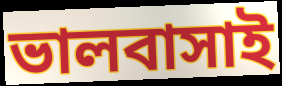
ভালবাসাই